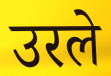
उरले